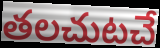
తలచుటచే